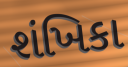
શંખિકા